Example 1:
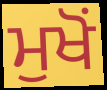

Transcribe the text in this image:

ਮੁਖੋਂ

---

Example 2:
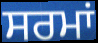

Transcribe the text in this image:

ਸਰਮਾਂ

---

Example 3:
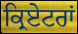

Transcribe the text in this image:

ਕ੍ਰਿਏਟਰਾਂ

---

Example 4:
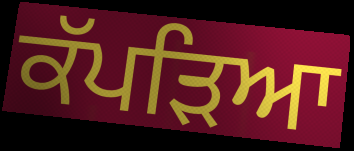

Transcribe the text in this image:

ਕੱਪੜਿਆ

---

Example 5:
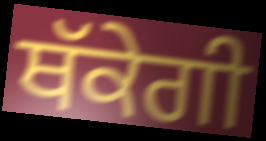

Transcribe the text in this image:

ਥੱਕੇਗੀ